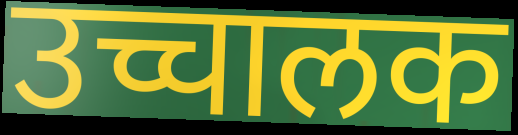
उच्चालक